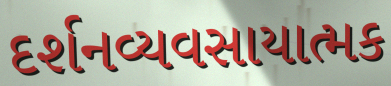
દર્શનવ્યવસાયાત્મક